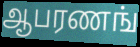
ஆபரணங்